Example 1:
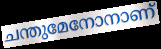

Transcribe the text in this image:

ചന്തുമേനോനാണ്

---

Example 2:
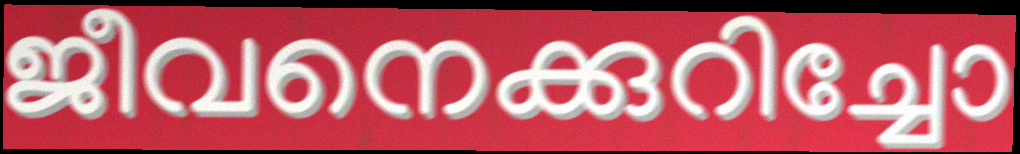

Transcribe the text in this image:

ജീവനെക്കുറിച്ചോ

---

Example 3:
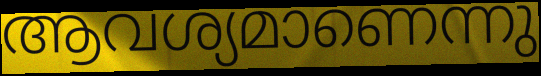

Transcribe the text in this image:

ആവശ്യമാണെന്നു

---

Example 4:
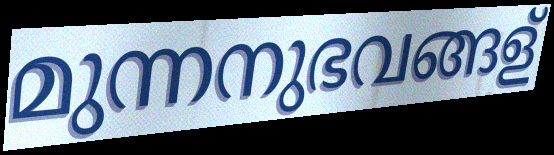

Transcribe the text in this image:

മുന്നനുഭവങ്ങള്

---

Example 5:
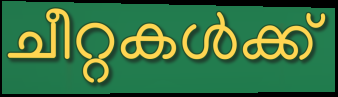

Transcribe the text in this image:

ചീറ്റകൾക്ക്